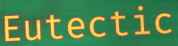
Eutectic